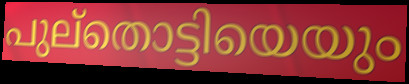
പുല്തൊട്ടിയെയും